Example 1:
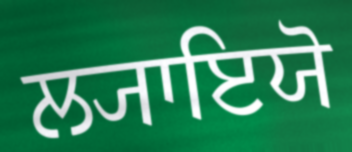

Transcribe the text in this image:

ਲ੍ਯਾਇਯੋ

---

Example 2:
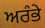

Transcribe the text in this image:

ਅਰੰਭੇ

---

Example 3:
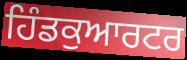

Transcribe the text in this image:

ਹਿੰਡਕੁਆਰਟਰ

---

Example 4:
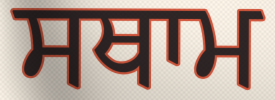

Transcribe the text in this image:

ਸਥਾਮ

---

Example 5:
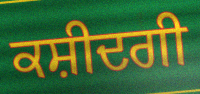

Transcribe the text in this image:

ਕਸ਼ੀਦਗੀ